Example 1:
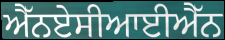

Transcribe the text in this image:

ਐੱਨਏਸੀਆਈਐੱਨ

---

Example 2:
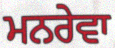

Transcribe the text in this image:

ਮਨਰੇਵਾ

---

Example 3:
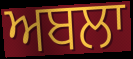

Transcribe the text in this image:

ਅਬਲਾ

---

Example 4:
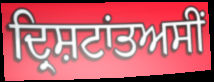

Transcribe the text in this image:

ਦ੍ਰਿਸ਼ਟਾਂਤਅਸੀਂ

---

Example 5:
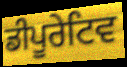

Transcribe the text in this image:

ਡੀਪੂਰੇਟਿਵ